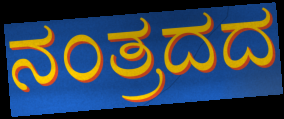
ನಂತ್ರದದ